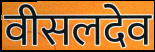
वीसलदेव